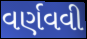
વર્ણવવી